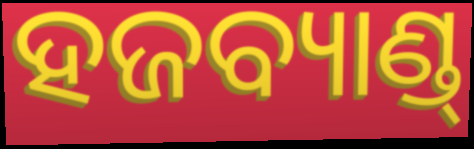
ହଜବ୍ୟାଣ୍ଡ୍